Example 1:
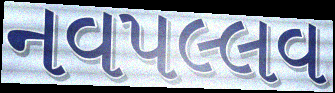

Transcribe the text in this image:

નવપલ્લવ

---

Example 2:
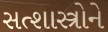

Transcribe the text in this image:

સત્શાસ્ત્રોને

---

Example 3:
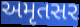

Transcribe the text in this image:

અમૃતસર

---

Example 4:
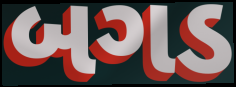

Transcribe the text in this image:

બગડ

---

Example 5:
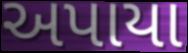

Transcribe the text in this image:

અપાયા